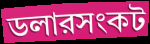
ডলারসংকট